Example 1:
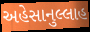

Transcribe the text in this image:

અહેસાનુલ્લાહ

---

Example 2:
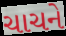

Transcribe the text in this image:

ચાચને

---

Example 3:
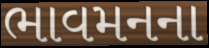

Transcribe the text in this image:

ભાવમનના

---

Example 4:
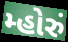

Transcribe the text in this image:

મ્હોરું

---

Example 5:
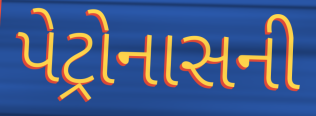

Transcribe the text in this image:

પેટ્રોનાસની